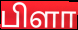
பிளா